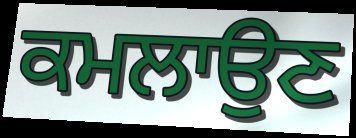
ਕਮਲਾਉਣ